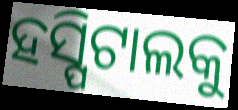
ହସ୍ପିଟାଲକୁ